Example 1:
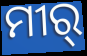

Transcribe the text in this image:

ମୀର୍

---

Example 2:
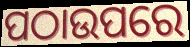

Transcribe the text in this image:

ପଠାଉପରେ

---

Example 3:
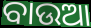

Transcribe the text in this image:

ବାଉଆ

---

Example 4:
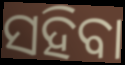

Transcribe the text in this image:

ସହିବା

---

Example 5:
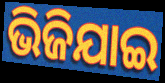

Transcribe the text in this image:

ଭିଜିଯାଇ